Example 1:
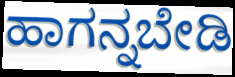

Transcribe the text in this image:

ಹಾಗನ್ನಬೇಡಿ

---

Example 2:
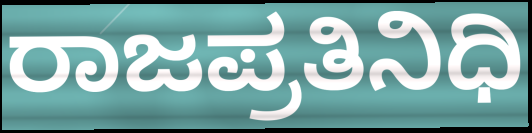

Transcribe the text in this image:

ರಾಜಪ್ರತಿನಿಧಿ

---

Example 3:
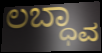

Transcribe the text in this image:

ಲಬ್ಧ್ವಾ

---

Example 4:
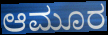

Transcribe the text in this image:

ಆಮೂರ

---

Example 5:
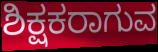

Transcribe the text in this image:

ಶಿಕ್ಷಕರಾಗುವ